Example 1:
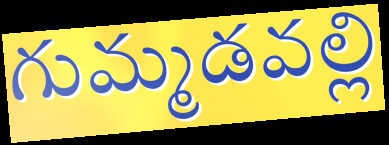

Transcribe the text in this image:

గుమ్మడవల్లి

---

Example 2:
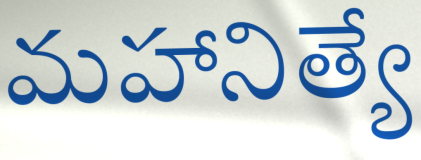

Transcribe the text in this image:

మహానిత్యే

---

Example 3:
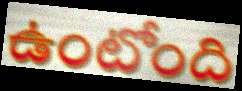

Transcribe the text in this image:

ఉంటోంది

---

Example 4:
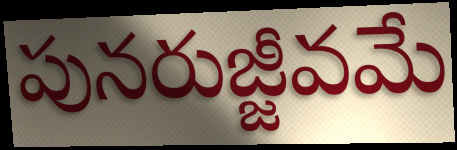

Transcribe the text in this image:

పునరుజ్జీవమే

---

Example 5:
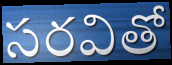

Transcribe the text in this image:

సరవితో